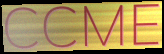
CCME